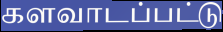
களவாடப்பட்டு